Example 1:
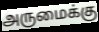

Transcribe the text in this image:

அருமைக்கு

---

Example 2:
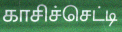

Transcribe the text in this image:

காசிச்செட்டி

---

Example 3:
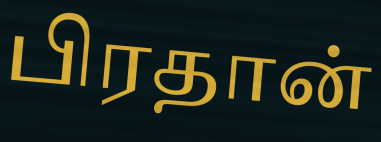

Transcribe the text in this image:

பிரதான்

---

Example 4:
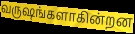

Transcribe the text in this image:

வருஷங்களாகின்றன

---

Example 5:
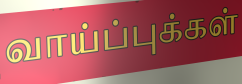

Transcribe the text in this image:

வாய்ப்புக்கள்